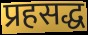
प्रहसद्ध